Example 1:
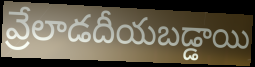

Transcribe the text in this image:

వ్రేలాడదీయబడ్డాయి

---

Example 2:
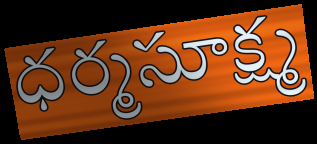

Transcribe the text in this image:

ధర్మసూక్ష్మ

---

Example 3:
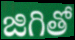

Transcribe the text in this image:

జిగితో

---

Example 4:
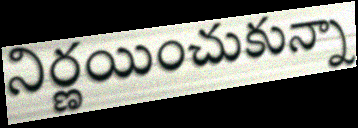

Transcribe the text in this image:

నిర్ణయించుకున్నా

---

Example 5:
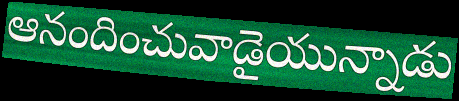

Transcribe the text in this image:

ఆనందించువాడైయున్నాడు